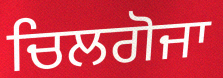
ਚਿਲਗੋਜਾ